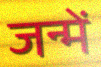
जन्में